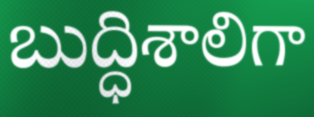
బుద్ధిశాలిగా